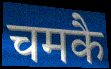
चमकै